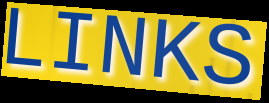
LINKS